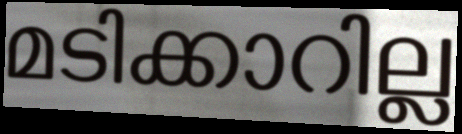
മടിക്കാറില്ല